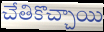
చేతికొచ్చాయి